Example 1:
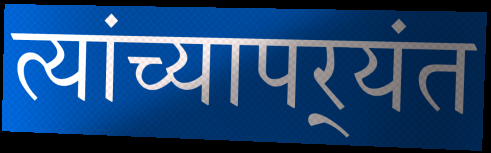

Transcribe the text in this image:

त्यांच्यापर्यंत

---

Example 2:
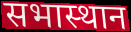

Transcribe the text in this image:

सभास्थान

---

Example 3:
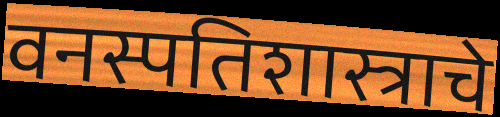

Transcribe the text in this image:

वनस्पतिशास्त्राचे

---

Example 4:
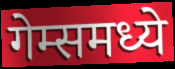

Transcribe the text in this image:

गेम्समध्ये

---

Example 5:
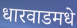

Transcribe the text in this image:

धारवाडमधे